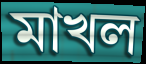
মাখল